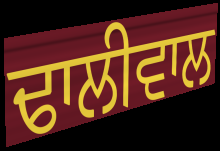
ਢਾਲੀਵਾਲ